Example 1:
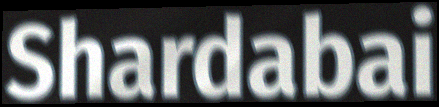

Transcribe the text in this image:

Shardabai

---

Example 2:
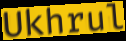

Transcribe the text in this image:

Ukhrul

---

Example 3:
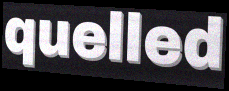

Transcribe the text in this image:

quelled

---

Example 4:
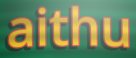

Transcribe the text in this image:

aithu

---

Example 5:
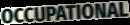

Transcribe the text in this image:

OCCUPATIONAL